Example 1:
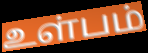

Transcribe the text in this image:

உள்பம்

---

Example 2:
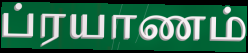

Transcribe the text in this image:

ப்ரயாணம்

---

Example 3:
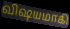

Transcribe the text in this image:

விஷயமாகி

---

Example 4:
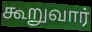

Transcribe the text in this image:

கூறுவார்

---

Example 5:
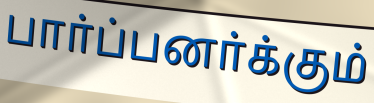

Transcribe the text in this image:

பார்ப்பனர்க்கும்